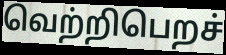
வெற்றிபெறச்